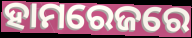
ହାମରେଜରେ